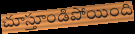
చూస్తూండిపోయింది